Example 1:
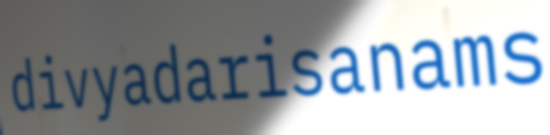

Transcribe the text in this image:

divyadarisanams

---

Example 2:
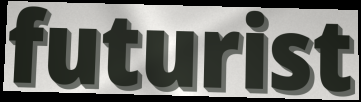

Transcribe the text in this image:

futurist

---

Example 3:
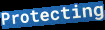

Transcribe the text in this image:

Protecting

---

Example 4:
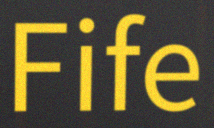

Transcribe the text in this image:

Fife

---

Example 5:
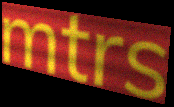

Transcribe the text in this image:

mtrs